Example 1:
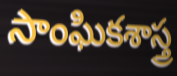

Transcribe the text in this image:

సాంఘికశాస్త్ర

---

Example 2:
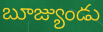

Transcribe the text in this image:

బూజ్యుండు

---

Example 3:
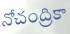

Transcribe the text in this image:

నోచంద్రికా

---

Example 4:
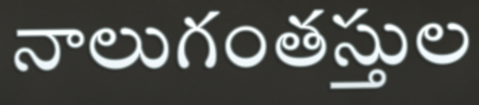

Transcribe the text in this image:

నాలుగంతస్తుల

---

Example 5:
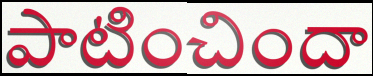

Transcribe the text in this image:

పాటించిందా